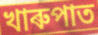
খাৰুপাত